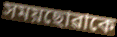
সময়ছোৱাকে